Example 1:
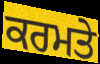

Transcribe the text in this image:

ਕਰਮਤੇ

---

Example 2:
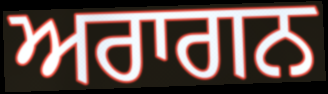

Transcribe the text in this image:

ਅਰਾਗਨ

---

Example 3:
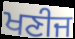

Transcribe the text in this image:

ਖਣੀਜ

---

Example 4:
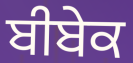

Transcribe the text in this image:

ਬੀਬੇਕ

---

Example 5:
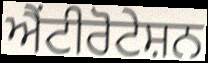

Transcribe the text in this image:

ਐਂਟੀਰੋਟੇਸ਼ਨ